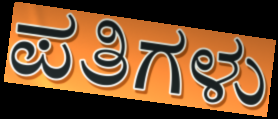
ಪತಿಗಳು